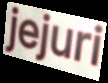
jejuri